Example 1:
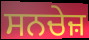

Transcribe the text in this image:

ਸਨਚੇਜ਼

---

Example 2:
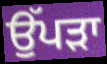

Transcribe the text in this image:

ਉੱਪੜਾ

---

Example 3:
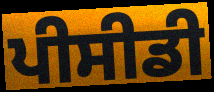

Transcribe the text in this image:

ਪੀਸੀਡੀ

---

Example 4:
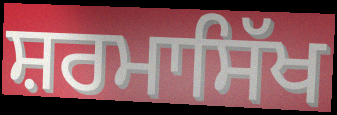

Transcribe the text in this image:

ਸ਼ਰਮਾਸਿੱਖ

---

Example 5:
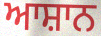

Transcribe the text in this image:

ਆਸ਼ਾਨ